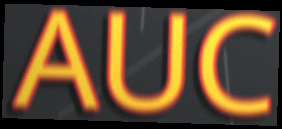
AUC